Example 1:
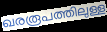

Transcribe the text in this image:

ഖരരൂപത്തിലുള്ള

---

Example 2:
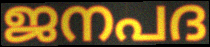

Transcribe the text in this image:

ജനപദ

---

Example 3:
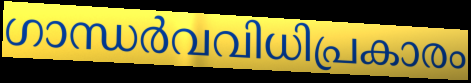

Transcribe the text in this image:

ഗാന്ധർവവിധിപ്രകാരം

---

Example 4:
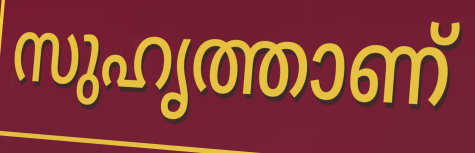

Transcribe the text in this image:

സുഹൃത്താണ്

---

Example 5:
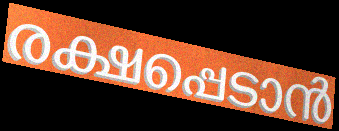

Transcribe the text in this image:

രക്ഷപ്പെടാൻ